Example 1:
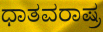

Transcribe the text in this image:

ಧಾತವರಾಷ್ರ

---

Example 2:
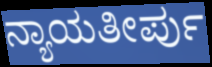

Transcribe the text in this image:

ನ್ಯಾಯತೀರ್ಪು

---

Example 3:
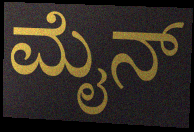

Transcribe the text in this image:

ಮೈನ್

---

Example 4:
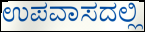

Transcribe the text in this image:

ಉಪವಾಸದಲ್ಲಿ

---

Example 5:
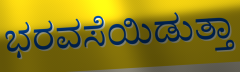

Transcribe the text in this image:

ಭರವಸೆಯಿಡುತ್ತಾ